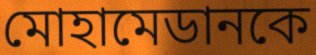
মোহামেডানকে